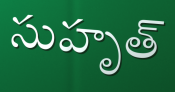
సుహృత్